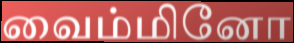
வைம்மினோ